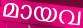
മായവ